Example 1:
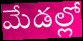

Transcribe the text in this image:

మేడల్లో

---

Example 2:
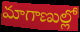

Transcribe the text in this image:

మాగాణుల్లో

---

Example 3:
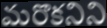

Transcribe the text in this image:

మరొకనిని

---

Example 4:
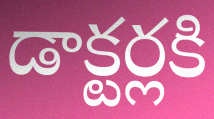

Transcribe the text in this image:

డాక్టర్లకి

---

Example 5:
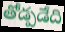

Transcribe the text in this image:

తోడ్పడేది